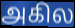
அகில